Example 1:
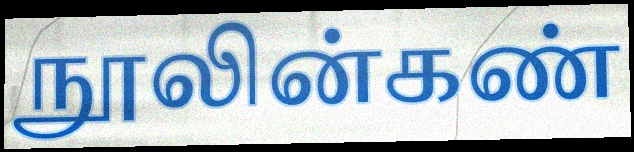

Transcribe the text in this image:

நூலின்கண்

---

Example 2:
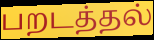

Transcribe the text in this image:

பறடத்தல்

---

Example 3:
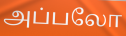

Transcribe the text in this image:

அப்பலோ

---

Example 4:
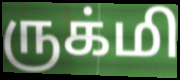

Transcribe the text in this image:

ருக்மி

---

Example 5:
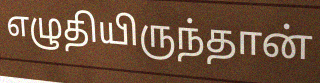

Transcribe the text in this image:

எழுதியிருந்தான்